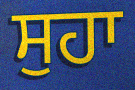
ਸੁਹਾ